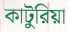
কাটুরিয়া